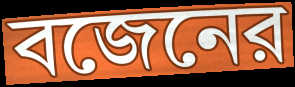
বজেনের